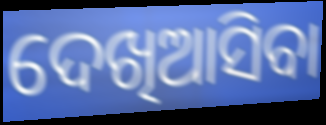
ଦେଖିଆସିବା